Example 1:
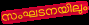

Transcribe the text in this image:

സംഘടനയിലും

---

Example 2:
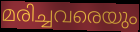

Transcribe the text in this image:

മരിച്ചവരെയും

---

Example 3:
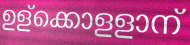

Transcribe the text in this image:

ഉള്ക്കൊളളാന്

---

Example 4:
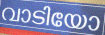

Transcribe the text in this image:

വാടിയോ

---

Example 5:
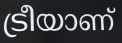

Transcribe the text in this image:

ട്രീയാണ്